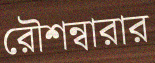
রৌশন্বারার